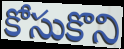
కోసుకొని